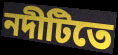
নদীটিতে